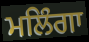
ਮਲਿੰਗਾ